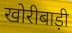
खोरीबाड़ी